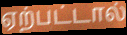
ஏற்பட்டால்